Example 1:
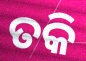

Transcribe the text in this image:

ତକି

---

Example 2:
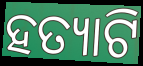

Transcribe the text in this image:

ହତ୍ୟାଟି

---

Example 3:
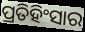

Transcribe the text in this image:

ପ୍ରତିହିଂସାର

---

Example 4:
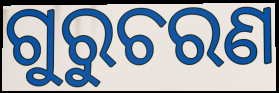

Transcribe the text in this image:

ଗୁରୁଚରଣ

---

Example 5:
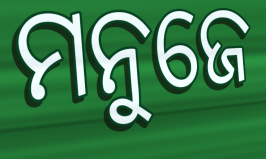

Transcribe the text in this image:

ମନୁଜେ